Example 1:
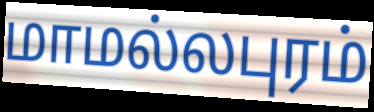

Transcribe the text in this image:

மாமல்லபுரம்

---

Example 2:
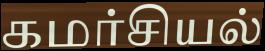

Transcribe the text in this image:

கமர்சியல்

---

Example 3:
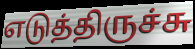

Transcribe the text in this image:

எடுத்திருச்சு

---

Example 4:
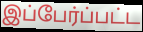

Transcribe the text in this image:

இப்பேர்ப்பட்ட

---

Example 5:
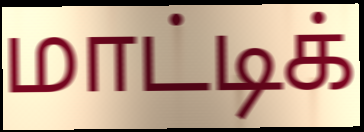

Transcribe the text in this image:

மாட்டிக்